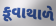
કૂવાથાળે